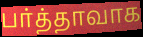
பர்த்தாவாக